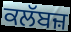
ਕਲੱਬਜ਼